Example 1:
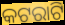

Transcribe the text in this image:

କଟରାଟି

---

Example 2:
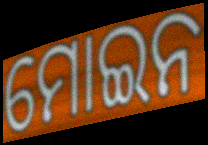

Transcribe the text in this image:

ମୋଇନ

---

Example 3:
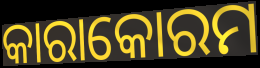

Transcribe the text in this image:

କାରାକୋରମ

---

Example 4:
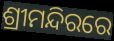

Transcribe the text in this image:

ଶ୍ରୀମନ୍ଦିରରେ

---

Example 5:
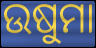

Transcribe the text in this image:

ଉଷୁମା